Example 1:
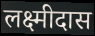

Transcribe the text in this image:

लक्ष्मीदास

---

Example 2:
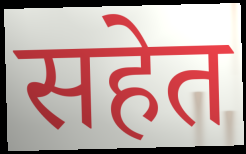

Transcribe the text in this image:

सहेत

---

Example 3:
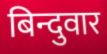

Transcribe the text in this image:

बिन्‍दुवार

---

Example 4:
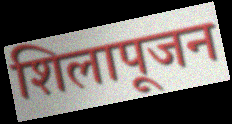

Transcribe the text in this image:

शिलापूजन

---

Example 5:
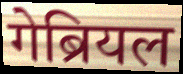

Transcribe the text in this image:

गेब्रियल